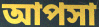
আপসা